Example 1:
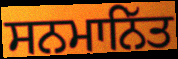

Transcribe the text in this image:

ਸਨਮਾਨਿੱਤ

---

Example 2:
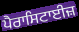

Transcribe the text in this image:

ਪੈਰਾਸਿਟਾਈਜ਼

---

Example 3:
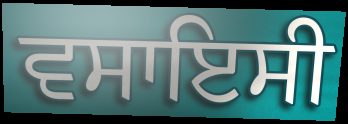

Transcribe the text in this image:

ਵਸਾਇਸੀ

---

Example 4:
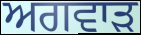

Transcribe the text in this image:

ਅਗਵਾੜ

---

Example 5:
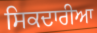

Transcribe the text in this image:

ਸਿਕਦਾਰੀਆ